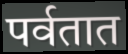
पर्वतात